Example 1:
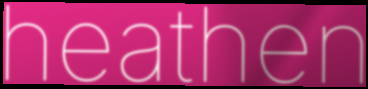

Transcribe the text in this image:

heathen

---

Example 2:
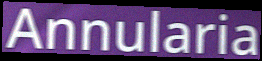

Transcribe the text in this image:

Annularia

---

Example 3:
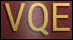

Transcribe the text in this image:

VQE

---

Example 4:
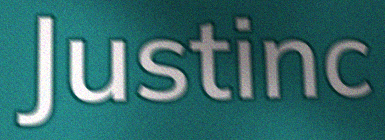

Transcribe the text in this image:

Justinc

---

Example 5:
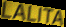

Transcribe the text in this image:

LALITA